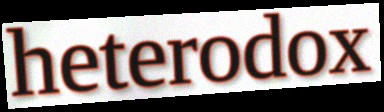
heterodox